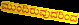
ಮುಂದಿರುವುದರಿಂದ